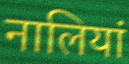
नालियां